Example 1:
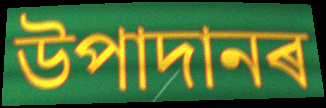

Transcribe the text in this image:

উপাদানৰ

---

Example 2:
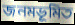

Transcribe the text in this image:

জনমভূমিত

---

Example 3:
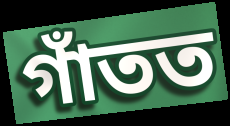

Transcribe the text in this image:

গাঁতত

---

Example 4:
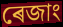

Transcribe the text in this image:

ৰেজাং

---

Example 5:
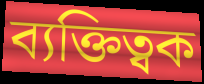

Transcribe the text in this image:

ব্যক্তিত্বক